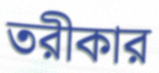
তরীকার